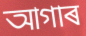
আগাৰ